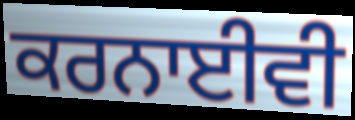
ਕਰਨਾਈਵੀ